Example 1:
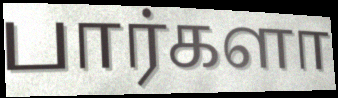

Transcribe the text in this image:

பார்களா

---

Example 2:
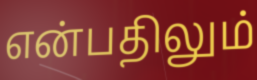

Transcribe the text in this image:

என்பதிலும்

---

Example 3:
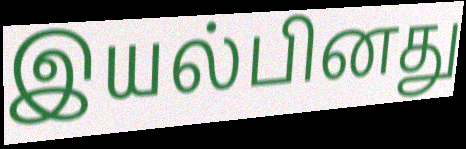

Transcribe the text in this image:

இயல்பினது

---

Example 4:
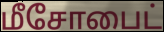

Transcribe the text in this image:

மீசோபைட்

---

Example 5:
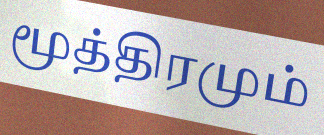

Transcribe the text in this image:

மூத்திரமும்